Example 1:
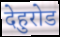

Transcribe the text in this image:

देहुरोड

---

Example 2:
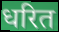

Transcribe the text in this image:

धरित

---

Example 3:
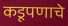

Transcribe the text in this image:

कडूपणाचे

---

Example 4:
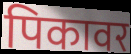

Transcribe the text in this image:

पिकावर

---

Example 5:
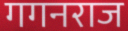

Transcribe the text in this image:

गगनराज